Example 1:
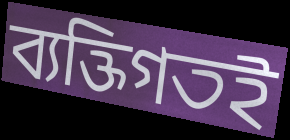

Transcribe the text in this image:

ব্যক্তিগতই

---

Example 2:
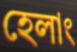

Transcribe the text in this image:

হেলাং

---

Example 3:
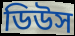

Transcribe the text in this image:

ডিউস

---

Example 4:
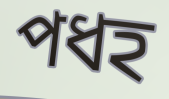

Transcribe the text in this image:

পধহ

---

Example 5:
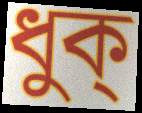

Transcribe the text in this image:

ধুক্